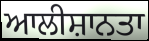
ਆਲੀਸ਼ਾਨਤਾ